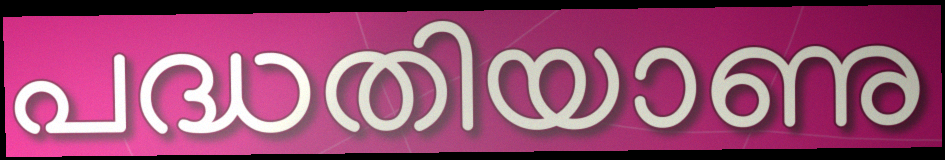
പദ്ധതിയാണു